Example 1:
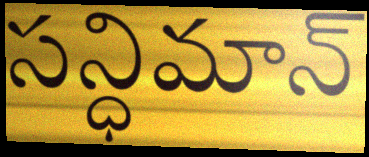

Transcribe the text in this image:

సన్ధిమాన్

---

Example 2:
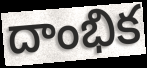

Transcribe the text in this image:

దాంభిక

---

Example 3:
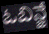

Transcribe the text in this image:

ఓబిన్జే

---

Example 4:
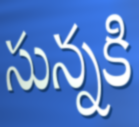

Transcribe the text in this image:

సున్నకి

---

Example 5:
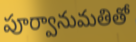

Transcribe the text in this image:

పూర్వానుమతితో